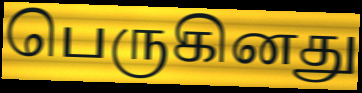
பெருகினது